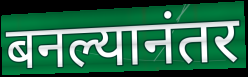
बनल्यानंतर